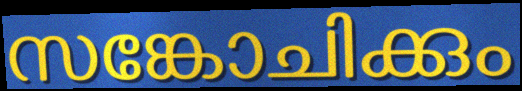
സങ്കോചിക്കും